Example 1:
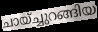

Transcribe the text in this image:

ചായ്ച്ചുറങ്ങിയ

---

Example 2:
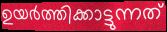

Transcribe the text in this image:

ഉയർത്തിക്കാട്ടുന്നത്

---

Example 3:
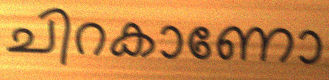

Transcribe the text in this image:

ചിറകാണോ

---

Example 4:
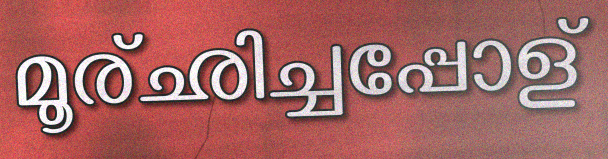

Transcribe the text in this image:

മൂര്ഛിച്ചപ്പോള്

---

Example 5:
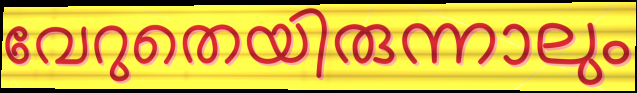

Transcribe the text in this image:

വേറുതെയിരുന്നാലും